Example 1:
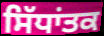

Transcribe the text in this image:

ਸਿੱਧਾਂਤਕ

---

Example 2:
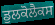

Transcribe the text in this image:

ਡੁਲਕੋਲੈਕਸ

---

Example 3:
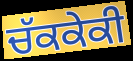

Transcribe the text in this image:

ਚੱਕਕੇਕੀ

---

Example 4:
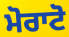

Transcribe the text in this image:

ਮੋਰਾਟੋ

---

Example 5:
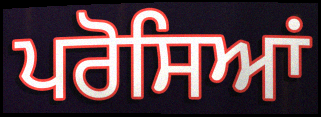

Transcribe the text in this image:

ਪਰੋਸਿਆਂ